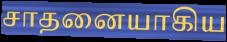
சாதனையாகிய